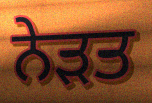
ਨੇੜਤ